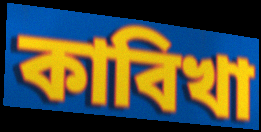
কাবিখা